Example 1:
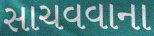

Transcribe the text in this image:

સાચવવાના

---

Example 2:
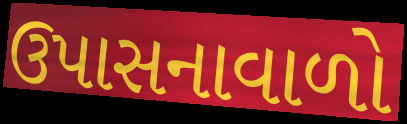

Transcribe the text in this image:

ઉપાસનાવાળો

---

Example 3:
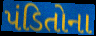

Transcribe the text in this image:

પંડિતોના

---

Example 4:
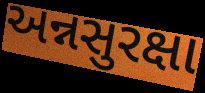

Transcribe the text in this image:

અન્નસુરક્ષા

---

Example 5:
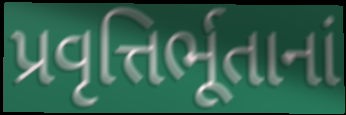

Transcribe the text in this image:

પ્રવૃત્તિર્ભૂતાનાં